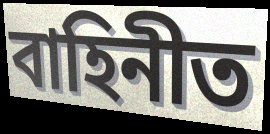
বাহিনীত